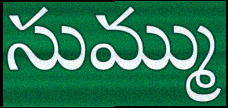
సుమ్ము